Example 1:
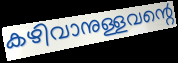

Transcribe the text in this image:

കഴിവാനുള്ളവന്റെ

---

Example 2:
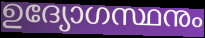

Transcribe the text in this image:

ഉദ്യോഗസ്ഥനും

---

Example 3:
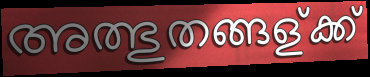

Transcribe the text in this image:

അത്ഭുതങ്ങള്ക്ക്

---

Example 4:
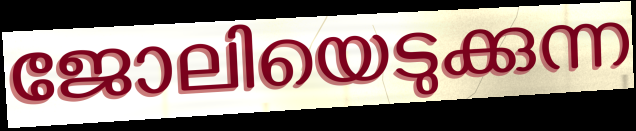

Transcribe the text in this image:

ജോലിയെടുക്കുന്ന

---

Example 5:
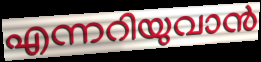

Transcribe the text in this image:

എന്നറിയുവാൻ